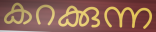
കറക്കുന്ന